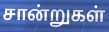
சான்றுகள்